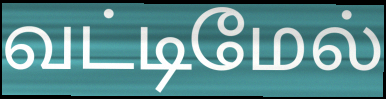
வட்டிமேல்